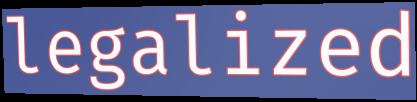
legalized